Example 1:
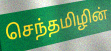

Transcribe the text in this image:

செந்தமிழின்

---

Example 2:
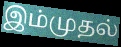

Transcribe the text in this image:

இம்முதல்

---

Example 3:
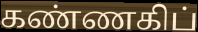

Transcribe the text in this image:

கண்ணகிப்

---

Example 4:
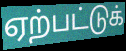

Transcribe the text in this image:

ஏற்பட்டுக்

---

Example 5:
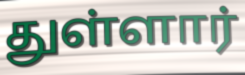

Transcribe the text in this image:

துள்ளார்